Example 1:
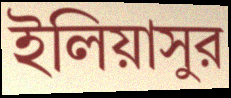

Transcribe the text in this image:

ইলিয়াসুর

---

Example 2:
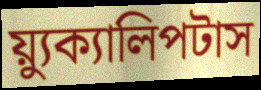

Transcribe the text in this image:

য়্যুক্যালিপটাস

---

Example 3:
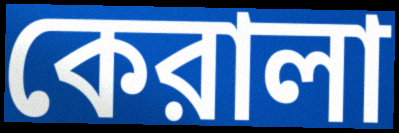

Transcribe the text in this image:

কেরালা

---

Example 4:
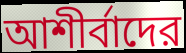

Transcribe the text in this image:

আশীর্বাদের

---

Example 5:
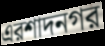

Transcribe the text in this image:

এরশাদনগর